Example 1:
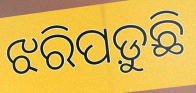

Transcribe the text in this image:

ଝରିପଡ଼ୁଛି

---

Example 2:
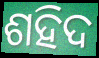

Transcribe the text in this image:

ଶହିଦ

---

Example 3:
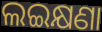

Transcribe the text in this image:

ଲଇକ୍ଷଣା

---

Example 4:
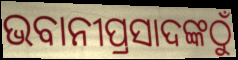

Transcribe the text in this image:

ଭବାନୀପ୍ରସାଦଙ୍କଠୁଁ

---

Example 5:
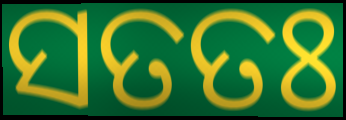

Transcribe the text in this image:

ସତତଃ